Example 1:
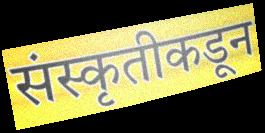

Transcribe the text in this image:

संस्कृतीकडून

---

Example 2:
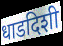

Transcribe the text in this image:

धाडदिशी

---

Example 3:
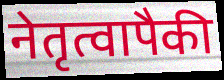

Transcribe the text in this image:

नेतृत्वापैकी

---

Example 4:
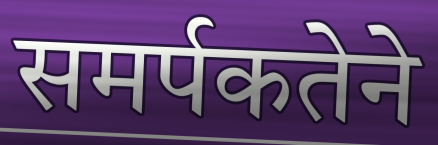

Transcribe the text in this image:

समर्पकतेने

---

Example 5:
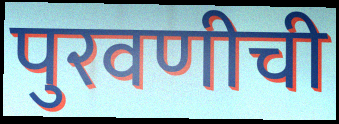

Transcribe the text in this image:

पुरवणीची